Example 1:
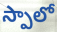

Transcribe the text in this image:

స్పాలో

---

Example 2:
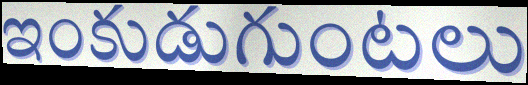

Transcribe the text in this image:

ఇంకుడుగుంటలు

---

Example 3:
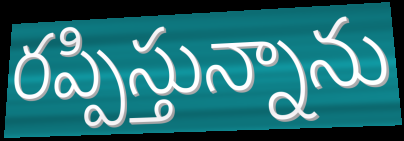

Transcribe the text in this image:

రప్పిస్తున్నాను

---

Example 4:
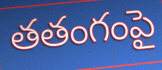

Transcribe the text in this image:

తతంగంపై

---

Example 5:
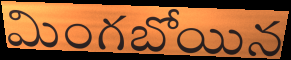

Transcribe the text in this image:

మింగబోయిన